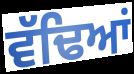
ਵੱਢਿਆਂ